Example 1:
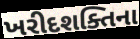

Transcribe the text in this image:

ખરીદશક્તિના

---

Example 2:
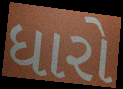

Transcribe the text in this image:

ધારો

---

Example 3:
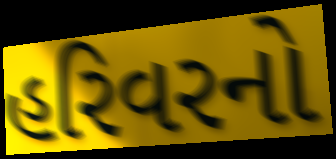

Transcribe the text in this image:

હરિવરનો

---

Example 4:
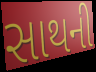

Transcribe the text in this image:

સાથની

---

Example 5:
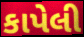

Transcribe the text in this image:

કાપેલી